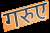
गरुए